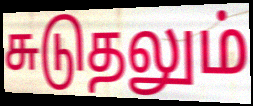
சுடுதலும்